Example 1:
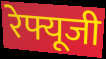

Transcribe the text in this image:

रेफ्यूजी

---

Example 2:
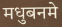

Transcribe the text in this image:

मधुबनमे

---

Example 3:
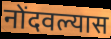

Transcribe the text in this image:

नोंदवल्यास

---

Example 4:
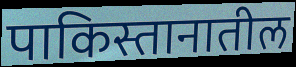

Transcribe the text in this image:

पाकिस्‍तानातील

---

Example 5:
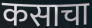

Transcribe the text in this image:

कसाचा